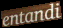
entandi